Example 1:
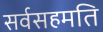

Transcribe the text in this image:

सर्वसहमति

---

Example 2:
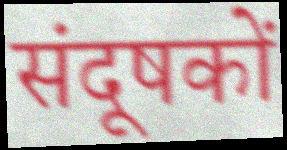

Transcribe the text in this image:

संदूषकों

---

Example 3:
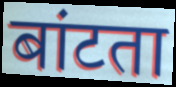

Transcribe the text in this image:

बांटता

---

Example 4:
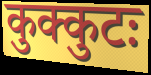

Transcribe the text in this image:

कुक्कुटः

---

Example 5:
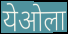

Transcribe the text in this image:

येओला